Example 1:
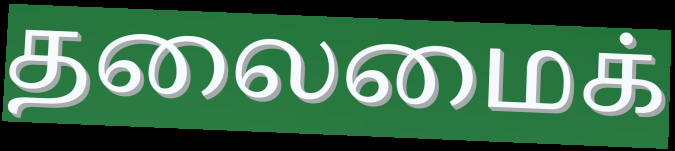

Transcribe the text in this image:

தலைமைக்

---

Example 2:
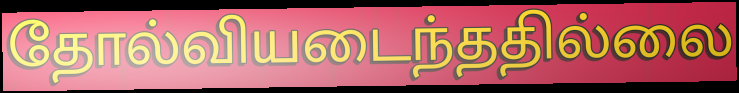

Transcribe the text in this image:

தோல்வியடைந்ததில்லை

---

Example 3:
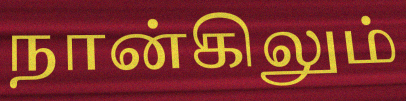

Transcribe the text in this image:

நான்கிலும்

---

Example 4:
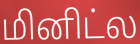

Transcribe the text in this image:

மினிட்ல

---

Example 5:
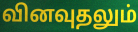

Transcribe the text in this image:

வினவுதலும்